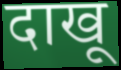
दाखू